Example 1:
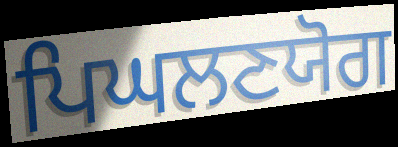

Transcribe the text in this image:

ਪਿਘਲਣਯੋਗ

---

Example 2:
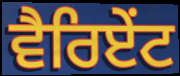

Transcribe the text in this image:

ਵੈਰਿਏਂਟ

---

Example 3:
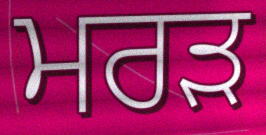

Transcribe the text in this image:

ਮਰੜ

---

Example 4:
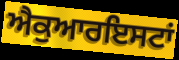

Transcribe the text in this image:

ਐਕੁਆਰਇਸਟਾਂ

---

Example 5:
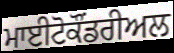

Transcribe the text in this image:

ਮਾਈਟੋਕੌਂਡਰੀਅਲ